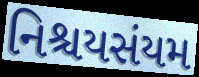
નિશ્ચયસંયમ